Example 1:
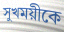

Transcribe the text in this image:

সুখময়ীকে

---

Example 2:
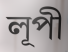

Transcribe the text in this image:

লূপী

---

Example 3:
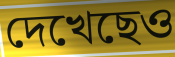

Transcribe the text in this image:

দেখেছেও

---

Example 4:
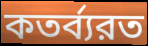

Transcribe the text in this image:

কতর্ব্যরত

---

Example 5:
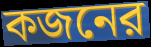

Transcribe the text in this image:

কজনের